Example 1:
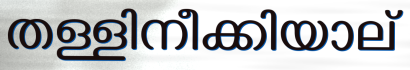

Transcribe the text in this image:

തള്ളിനീക്കിയാല്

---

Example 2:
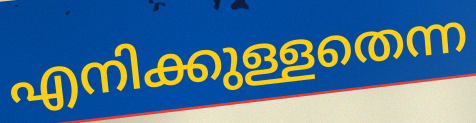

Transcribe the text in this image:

എനിക്കുള്ളതെന്ന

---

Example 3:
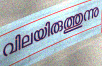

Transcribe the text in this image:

വിലയിരുത്തുന്നു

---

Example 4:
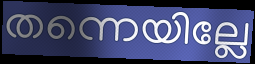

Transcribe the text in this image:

തന്നെയില്ലേ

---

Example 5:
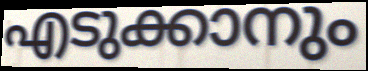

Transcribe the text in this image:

എടുക്കാനും